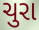
ચુરા